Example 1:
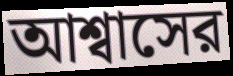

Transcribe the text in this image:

আশ্বাসের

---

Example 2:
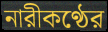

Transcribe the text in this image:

নারীকণ্ঠের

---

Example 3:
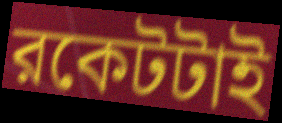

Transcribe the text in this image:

রকেটটাই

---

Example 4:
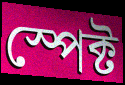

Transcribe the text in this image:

স্পেক্ট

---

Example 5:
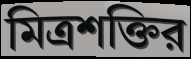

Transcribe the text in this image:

মিত্রশক্তির